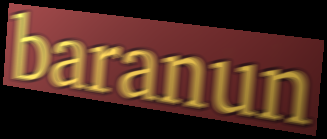
baranun